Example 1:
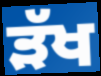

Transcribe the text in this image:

ੜੱਖ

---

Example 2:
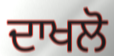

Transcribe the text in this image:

ਦਾਖਲੋ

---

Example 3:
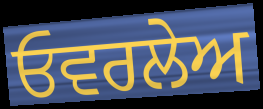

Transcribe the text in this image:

ਓਵਰਲੇਅ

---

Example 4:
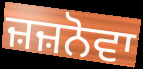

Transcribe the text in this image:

ਜ਼ਜ਼ਨੋਵਾ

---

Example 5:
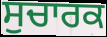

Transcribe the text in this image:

ਸੁਚਾਰਕ